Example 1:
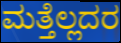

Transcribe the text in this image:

ಮತ್ತೆಲ್ಲದರ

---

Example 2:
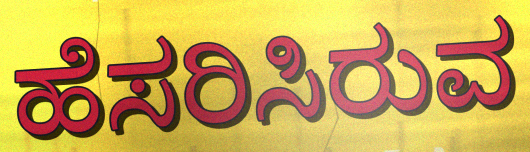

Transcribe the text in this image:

ಹೆಸರಿಸಿರುವ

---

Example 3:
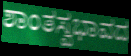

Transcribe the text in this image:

ಶಾಂತಸ್ವಭಾವದ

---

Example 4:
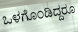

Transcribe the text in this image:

ಒಳಗೊಂಡಿದ್ದರೂ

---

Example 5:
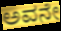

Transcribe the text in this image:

ಅವನೇ